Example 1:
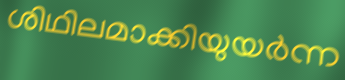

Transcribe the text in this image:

ശിഥിലമാക്കിയുയർന്ന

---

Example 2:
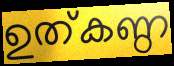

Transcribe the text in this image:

ഉത്കണ്ഠ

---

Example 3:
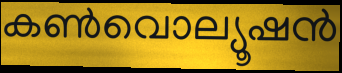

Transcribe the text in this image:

കൺവൊല്യൂഷൻ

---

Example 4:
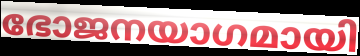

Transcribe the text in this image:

ഭോജനയാഗമായി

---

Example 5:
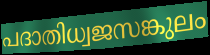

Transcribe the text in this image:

പദാതിധ്വജസങ്കുലം